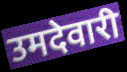
उमदेवारी